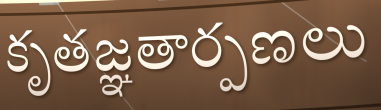
కృతజ్ఞతార్పణలు